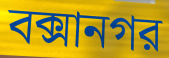
বক্সানগর